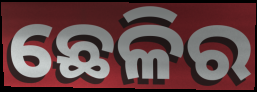
ଛେଳିର